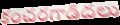
కంచరగాడిదలు